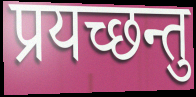
प्रयच्छन्तु